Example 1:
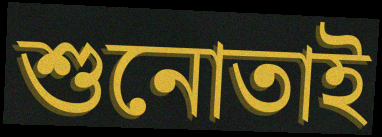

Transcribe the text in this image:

শুনোতাই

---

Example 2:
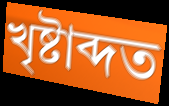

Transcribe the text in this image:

খৃষ্টাব্দত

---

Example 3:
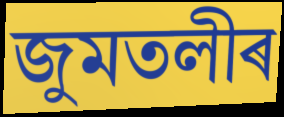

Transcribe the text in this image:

জুমতলীৰ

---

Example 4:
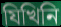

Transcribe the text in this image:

যিখিনি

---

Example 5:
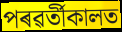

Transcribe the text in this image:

পৰৱৰ্তীকালত